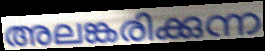
അലങ്കരിക്കുന്ന